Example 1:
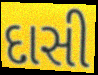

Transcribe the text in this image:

દાસી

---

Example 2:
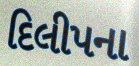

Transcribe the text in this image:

દિલીપના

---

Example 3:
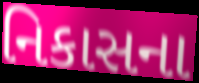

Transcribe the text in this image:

નિકાસના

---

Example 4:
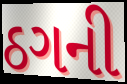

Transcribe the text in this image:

ઠગની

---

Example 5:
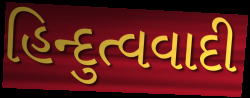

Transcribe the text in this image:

હિન્દુત્વવાદી